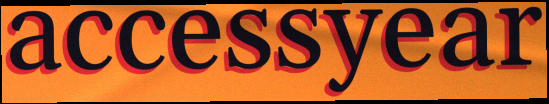
accessyear